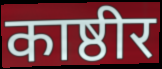
काष्ठीर